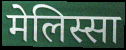
मेलिस्सा